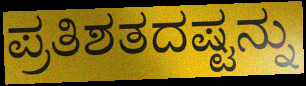
ಪ್ರತಿಶತದಷ್ಟನ್ನು